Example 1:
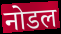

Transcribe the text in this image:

नोडल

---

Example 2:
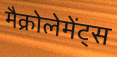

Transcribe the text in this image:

मैक्रोलेमेंट्स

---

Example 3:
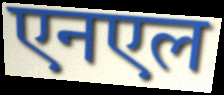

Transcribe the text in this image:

एनएल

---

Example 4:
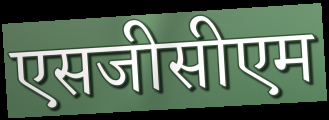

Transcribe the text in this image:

एसजीसीएम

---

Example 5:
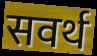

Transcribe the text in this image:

सवर्थ